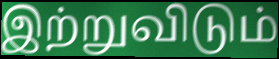
இற்றுவிடும்